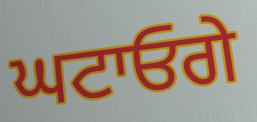
ਘਟਾਓਗੇ